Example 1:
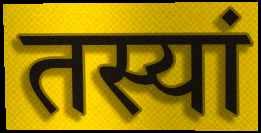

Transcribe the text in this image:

तस्यां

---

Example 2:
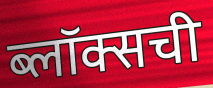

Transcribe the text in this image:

ब्लॉक्सची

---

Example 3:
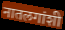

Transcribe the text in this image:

नातलगांशी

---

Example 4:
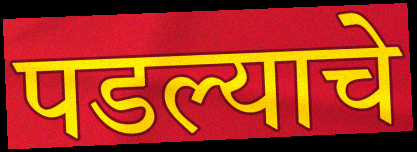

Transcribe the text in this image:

पडल्याचे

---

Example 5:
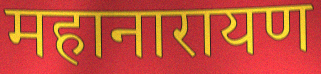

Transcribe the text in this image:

महानारायण